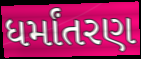
ધર્માંતરણ